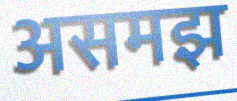
असमझ